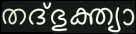
തദ്ഭുക്ത്യാ